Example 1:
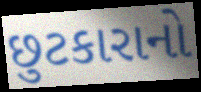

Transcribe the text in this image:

છુટકારાનો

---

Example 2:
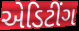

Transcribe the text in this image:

એડિટીંગ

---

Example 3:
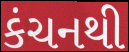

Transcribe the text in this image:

કંચનથી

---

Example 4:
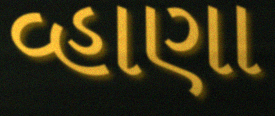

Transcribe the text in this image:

વ્હાણા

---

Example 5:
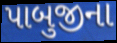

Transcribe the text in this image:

પાબુજીના